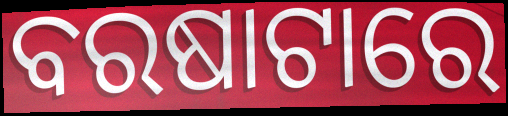
ବରଷାଟାରେ